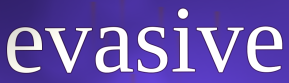
evasive